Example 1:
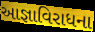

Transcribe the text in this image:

આજ્ઞાવિરાધના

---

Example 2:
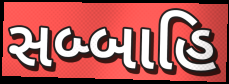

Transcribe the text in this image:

સબ્બાહિ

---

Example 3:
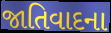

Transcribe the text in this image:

જાતિવાદના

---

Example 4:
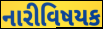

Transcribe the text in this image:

નારીવિષયક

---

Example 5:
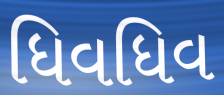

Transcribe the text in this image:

ધિવધિવ